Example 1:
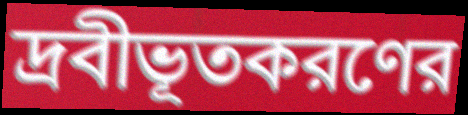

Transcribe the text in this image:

দ্রবীভূতকরণের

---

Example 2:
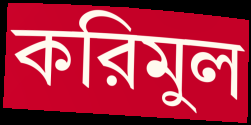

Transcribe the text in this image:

করিমুল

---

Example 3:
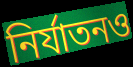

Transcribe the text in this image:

নির্যাতনও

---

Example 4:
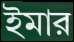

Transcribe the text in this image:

ইমার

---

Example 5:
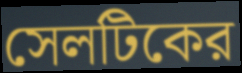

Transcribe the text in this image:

সেলটিকের